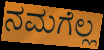
ನಮಗೆಲ್ಲ